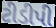
ટીડીપી